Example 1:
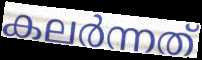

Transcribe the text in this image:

കലർന്നത്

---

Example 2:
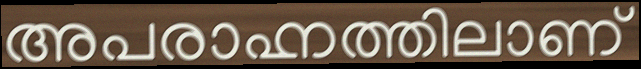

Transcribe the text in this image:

അപരാഹ്നത്തിലാണ്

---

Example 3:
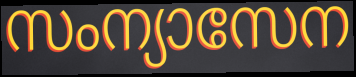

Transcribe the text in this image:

സംന്യാസേന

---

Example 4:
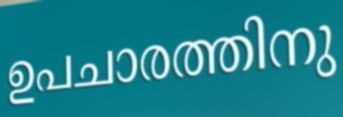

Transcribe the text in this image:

ഉപചാരത്തിനു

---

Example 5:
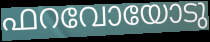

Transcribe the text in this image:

ഫറവോയോടു